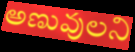
అణువులని